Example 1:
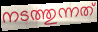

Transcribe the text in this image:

നടത്തുന്നത്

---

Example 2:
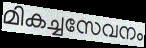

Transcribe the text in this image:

മികച്ചസേവനം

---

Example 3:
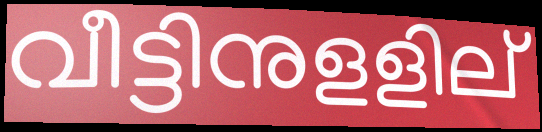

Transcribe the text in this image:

വീട്ടിനുളളില്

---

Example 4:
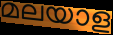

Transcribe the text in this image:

മലയാള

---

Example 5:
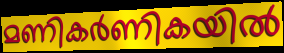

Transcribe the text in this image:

മണികർണികയിൽ